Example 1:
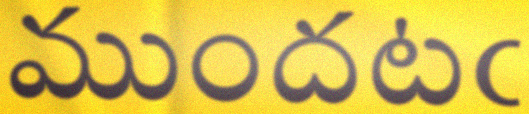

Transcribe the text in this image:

ముందటఁ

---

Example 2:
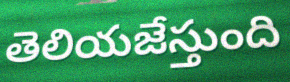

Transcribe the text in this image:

తెలియజేస్తుంది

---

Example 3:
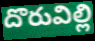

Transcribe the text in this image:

దొరువిల్లి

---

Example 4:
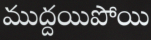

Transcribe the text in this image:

ముద్దయిపోయి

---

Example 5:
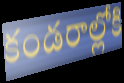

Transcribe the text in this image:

కండరాల్లోకి